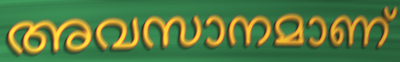
അവസാനമാണ്